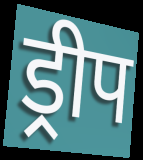
ड्रीप